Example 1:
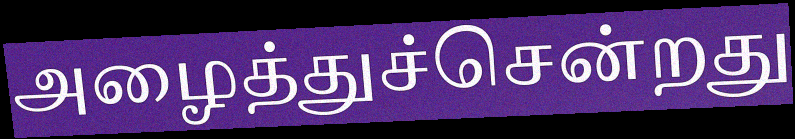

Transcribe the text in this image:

அழைத்துச்சென்றது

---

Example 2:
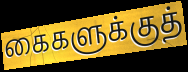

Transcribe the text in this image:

கைகளுக்குத்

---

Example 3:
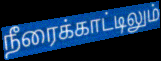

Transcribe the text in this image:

நீரைக்காட்டிலும்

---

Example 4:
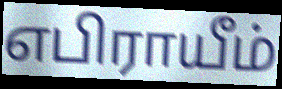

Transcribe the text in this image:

எபிராயீம்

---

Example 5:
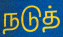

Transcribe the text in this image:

நடுத்